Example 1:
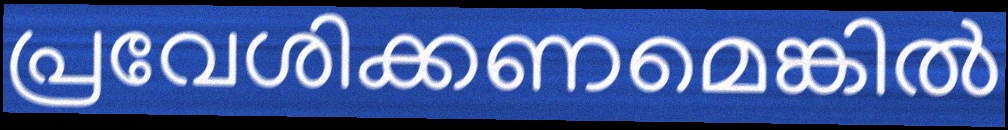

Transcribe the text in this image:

പ്രവേശിക്കണമെങ്കിൽ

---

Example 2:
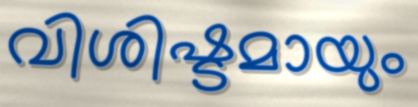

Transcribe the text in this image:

വിശിഷ്ടമായും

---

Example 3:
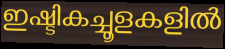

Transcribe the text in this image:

ഇഷ്ടികച്ചൂളകളിൽ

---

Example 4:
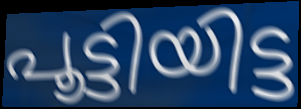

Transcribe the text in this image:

പൂട്ടിയിട്ട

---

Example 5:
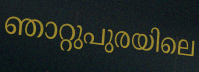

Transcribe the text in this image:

ഞാറ്റുപുരയിലെ